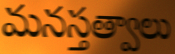
మనస్తత్వాలు